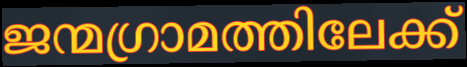
ജന്മഗ്രാമത്തിലേക്ക്